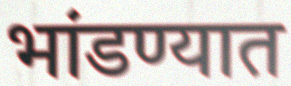
भांडण्यात